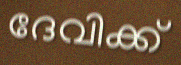
ദേവിക്ക്